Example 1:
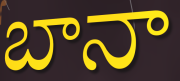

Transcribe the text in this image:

బానా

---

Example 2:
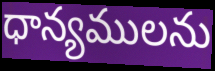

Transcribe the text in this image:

ధాన్యములను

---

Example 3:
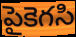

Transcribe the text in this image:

పైకెగసి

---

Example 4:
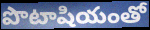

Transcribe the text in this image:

పొటాషియంతో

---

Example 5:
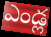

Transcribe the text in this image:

ఎండ్ల